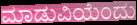
ಮಾಡುವಿಯೆಂದು